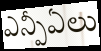
ఎన్పీఏలు